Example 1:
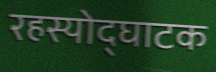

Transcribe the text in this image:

रहस्योद्घाटक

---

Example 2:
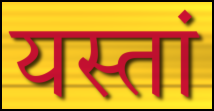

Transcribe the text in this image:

यस्तां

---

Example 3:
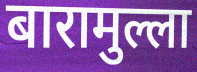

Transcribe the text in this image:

बारामुल्ला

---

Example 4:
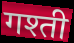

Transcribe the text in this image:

गश्‍ती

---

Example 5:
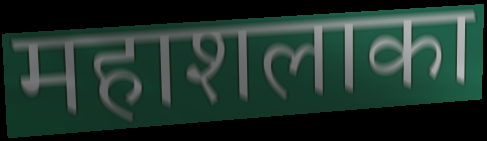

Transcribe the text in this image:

महाशलाका